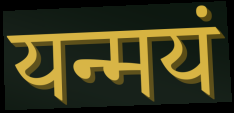
यन्मयं